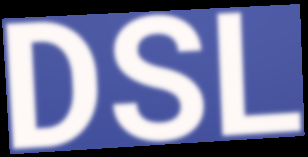
DSL